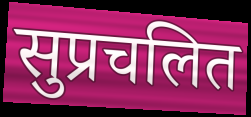
सुप्रचलित